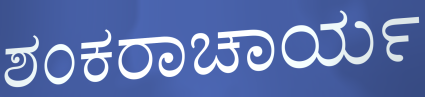
ಶಂಕರಾಚಾರ್ಯ